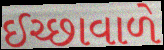
ઈચ્છાવાળે